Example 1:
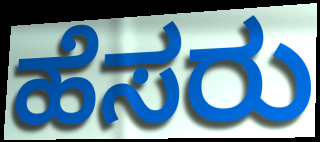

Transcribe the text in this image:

ಹೆಸರು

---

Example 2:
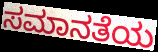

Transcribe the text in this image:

ಸಮಾನತೆಯ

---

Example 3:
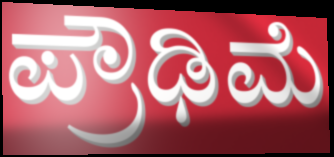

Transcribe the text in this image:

ಪ್ರೌಢಿಮೆ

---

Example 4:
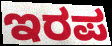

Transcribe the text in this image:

ಇರಪ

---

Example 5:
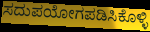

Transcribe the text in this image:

ಸದುಪಯೋಗಪಡಿಸಿಕೊಳ್ಳಿ